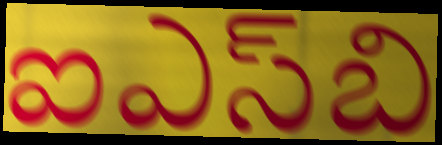
ఐఎస్‌బి